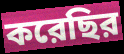
করেছির